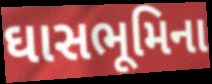
ઘાસભૂમિના